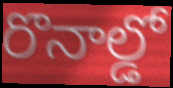
రొనాల్డో